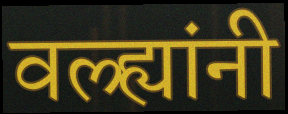
वल्ह्यांनी